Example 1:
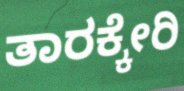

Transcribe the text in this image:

ತಾರಕ್ಕೇರಿ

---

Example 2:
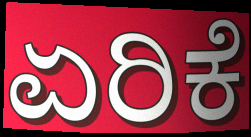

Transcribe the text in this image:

ಏರಿಕೆ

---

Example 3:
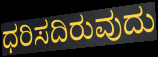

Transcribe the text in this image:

ಧರಿಸದಿರುವುದು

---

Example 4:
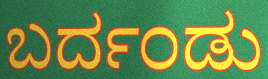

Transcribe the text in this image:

ಬರ್ದಂಡು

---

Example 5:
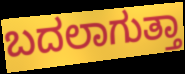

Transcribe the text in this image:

ಬದಲಾಗುತ್ತಾ